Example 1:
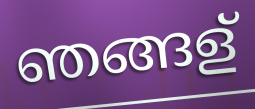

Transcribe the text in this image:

ഞങ്ങള്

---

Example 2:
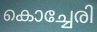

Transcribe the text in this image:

കൊച്ചേരി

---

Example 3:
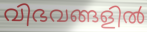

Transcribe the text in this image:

വിഭവങ്ങളിൽ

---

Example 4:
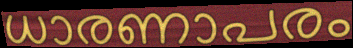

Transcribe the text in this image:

ധാരണാപരം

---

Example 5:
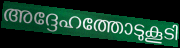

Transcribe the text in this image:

അദ്ദേഹത്തോടുകൂടി